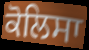
ਕੋਲਿਸਾ